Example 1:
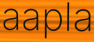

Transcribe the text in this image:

aapla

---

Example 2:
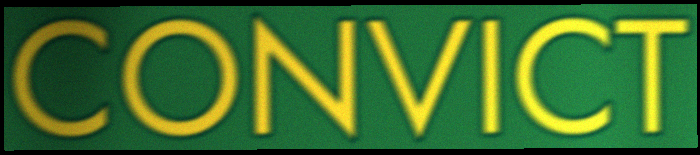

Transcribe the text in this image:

CONVICT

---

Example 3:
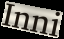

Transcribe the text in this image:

Inni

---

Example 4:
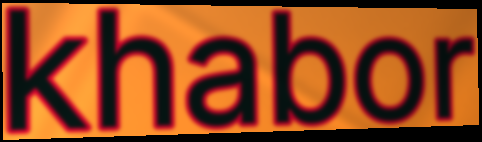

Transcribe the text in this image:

khabor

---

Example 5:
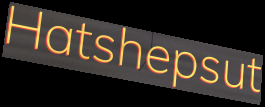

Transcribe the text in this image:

Hatshepsut